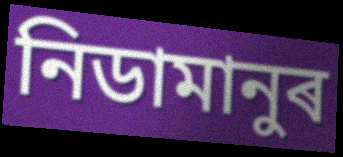
নিডামানুৰ